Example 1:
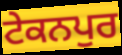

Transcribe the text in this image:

ਟੇਕਨਪੁਰ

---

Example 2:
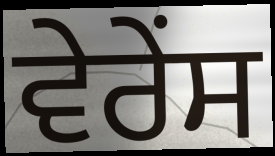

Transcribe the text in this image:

ਵੇਰੇਂਸ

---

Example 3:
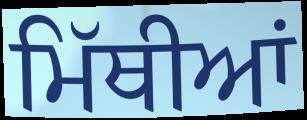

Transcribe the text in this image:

ਮਿੱਥੀਆਂ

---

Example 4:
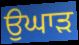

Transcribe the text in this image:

ਉਘਾੜ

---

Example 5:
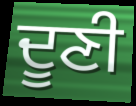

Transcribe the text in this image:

ਦੂਣੀ